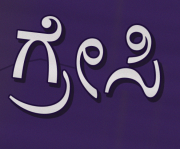
ಗ್ರೇಸಿ